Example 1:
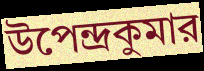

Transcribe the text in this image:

উপেন্দ্রকুমার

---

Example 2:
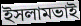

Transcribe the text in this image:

ইসলামভাই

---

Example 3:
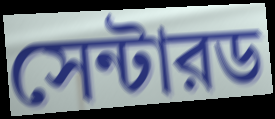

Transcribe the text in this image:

সেন্টারড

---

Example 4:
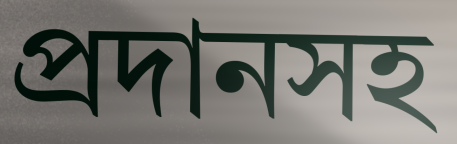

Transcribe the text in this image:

প্রদানসহ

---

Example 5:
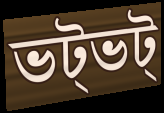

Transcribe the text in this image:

ভট্ভট্